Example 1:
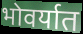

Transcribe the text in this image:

भोवर्यात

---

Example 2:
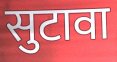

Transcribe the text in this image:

सुटावा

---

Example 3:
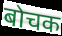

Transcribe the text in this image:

बोचक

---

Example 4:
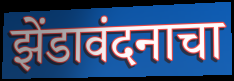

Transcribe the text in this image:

झेंडावंदनाचा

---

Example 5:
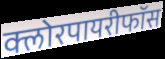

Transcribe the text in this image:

क्लोरपायरीफॉस